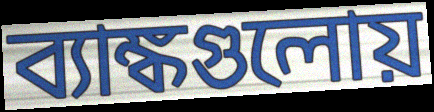
ব্যাঙ্কগুলোয়